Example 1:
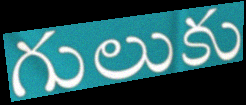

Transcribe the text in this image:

గులుకు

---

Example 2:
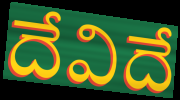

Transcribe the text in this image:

దేవిదే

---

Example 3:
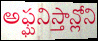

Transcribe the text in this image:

అఫ్ఘనిస్తాన్లోని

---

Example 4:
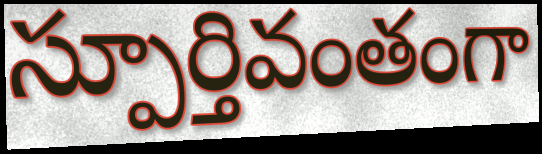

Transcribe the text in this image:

స్పూర్తివంతంగా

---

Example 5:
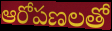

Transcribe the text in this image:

ఆరోపణలతో